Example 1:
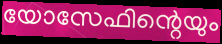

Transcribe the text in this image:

യോസേഫിന്റെയും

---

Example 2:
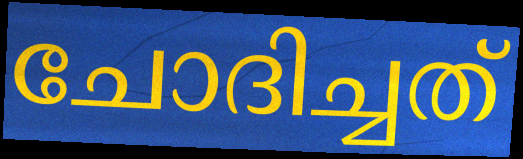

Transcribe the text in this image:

ചോദിച്ചത്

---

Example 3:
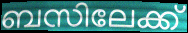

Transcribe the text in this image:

ബസിലേക്ക്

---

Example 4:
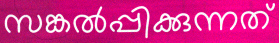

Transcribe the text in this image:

സങ്കൽപ്പിക്കുന്നത്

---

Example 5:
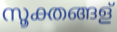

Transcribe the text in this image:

സൂക്തങ്ങള്